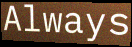
Always